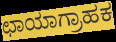
ಛಾಯಾಗ್ರಾಹಕ